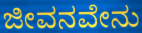
ಜೀವನವೇನು